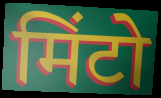
मिंटो